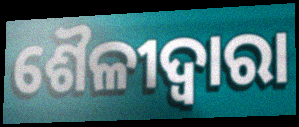
ଶୈଳୀଦ୍ୱାରା